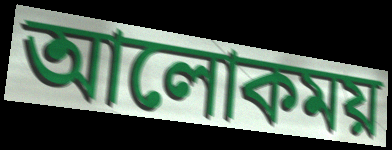
আলোকময়